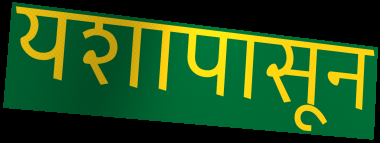
यशापासून